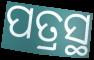
ପତ୍ରସ୍ଥ